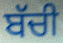
ਬੱਚੀ